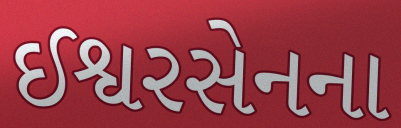
ઈશ્વરસેનના